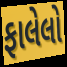
ફાલેલો